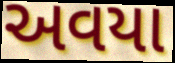
અવયા